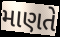
માણતે